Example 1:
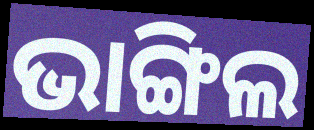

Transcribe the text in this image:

ଭାଙ୍ଗିଲ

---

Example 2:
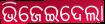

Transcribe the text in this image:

ଭିଜେଇଦେଲା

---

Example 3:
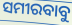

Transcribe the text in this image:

ସମୀରବାବୁ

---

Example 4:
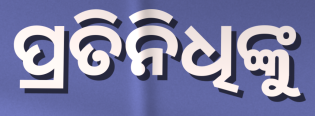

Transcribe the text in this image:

ପ୍ରତିନିଧିଙ୍କୁ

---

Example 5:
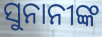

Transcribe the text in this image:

ସୁନାନୀଙ୍କ